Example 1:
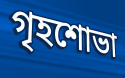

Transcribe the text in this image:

গৃহশোভা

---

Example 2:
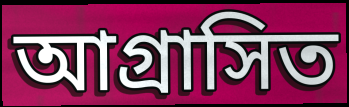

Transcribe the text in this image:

আগ্রাসিত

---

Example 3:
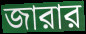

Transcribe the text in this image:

জারার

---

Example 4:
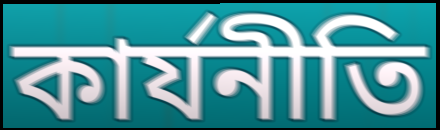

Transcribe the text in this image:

কার্যনীতি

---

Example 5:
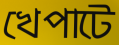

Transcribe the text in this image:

খেপাটে